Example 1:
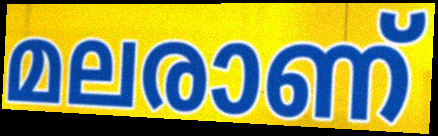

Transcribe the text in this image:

മലരാണ്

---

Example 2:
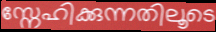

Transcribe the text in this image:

സ്നേഹിക്കുന്നതിലൂടെ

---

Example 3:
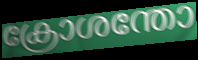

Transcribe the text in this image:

ക്രോശന്തോ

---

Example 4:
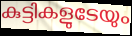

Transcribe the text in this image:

കുട്ടികളുടേയും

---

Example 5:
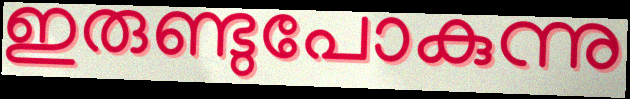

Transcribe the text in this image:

ഇരുണ്ടുപോകുന്നു